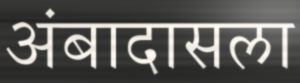
अंबादासला